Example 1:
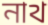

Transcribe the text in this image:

নাথ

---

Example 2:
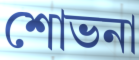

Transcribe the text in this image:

শোভনা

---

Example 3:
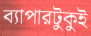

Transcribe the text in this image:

ব্যাপারটুকুই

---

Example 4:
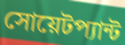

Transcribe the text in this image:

সোয়েটপ্যান্ট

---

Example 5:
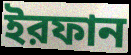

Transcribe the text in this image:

ইরফান